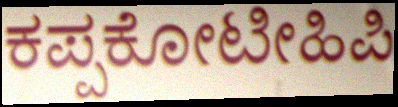
ಕಪ್ಪಕೋಟೀಹಿಪಿ